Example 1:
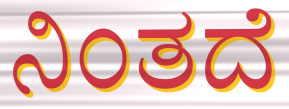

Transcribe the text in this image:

ನಿಂತದೆ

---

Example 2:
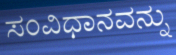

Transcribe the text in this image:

ಸಂವಿಧಾನವನ್ನು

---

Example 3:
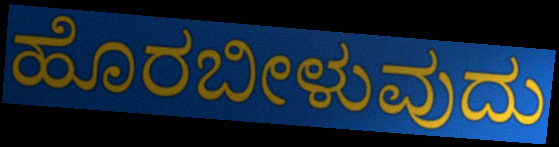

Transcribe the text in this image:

ಹೊರಬೀಳುವುದು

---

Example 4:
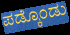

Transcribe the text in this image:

ಪಡ್ಕೊಂಡು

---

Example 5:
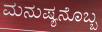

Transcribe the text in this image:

ಮನುಷ್ಯನೊಬ್ಬ